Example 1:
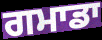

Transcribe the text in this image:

ਗਮਾਡਾ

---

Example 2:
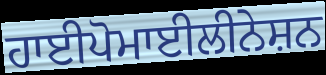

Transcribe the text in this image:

ਹਾਈਪੋਮਾਈਲੀਨੇਸ਼ਨ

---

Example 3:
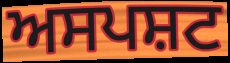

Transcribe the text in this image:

ਅਸਪਸ਼ਟ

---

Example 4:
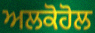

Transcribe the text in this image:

ਅਲਕੋਹੋਲ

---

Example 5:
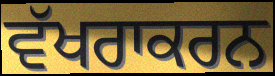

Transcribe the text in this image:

ਵੱਖਰਾਕਰਨ